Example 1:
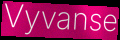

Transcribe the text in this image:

Vyvanse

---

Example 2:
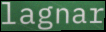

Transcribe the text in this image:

lagnar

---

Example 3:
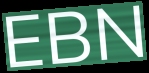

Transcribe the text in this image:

EBN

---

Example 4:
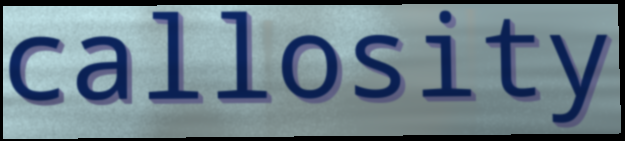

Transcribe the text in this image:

callosity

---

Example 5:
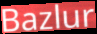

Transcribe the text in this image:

Bazlur